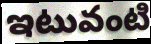
ఇటువంటి